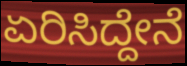
ಏರಿಸಿದ್ದೇನೆ